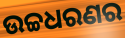
ଉଚ୍ଚଧରଣର